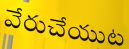
వేరుచేయుట